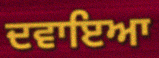
ਦਵਾਇਆ